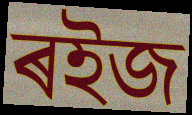
ৰইজ